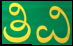
ತಿವಿ